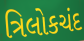
ત્રિલોકચંદ